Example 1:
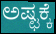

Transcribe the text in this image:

ಅಷ್ಟಕ್ಕೆ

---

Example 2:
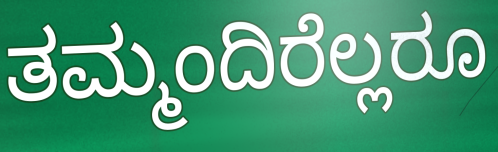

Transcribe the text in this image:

ತಮ್ಮಂದಿರೆಲ್ಲರೂ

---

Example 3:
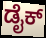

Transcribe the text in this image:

ಡೈಕ್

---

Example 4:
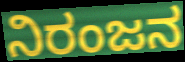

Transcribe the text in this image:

ನಿರಂಜನ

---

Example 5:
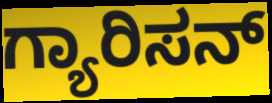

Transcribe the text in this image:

ಗ್ಯಾರಿಸನ್